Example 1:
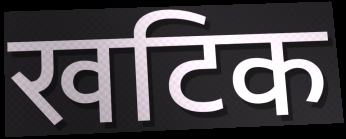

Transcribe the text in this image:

खटिक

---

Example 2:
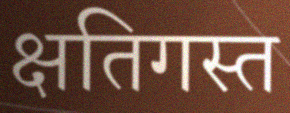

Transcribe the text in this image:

क्षतिगस्त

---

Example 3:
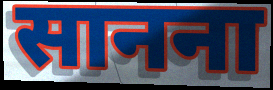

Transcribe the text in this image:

सानना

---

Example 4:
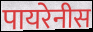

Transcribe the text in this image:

पायरेनीस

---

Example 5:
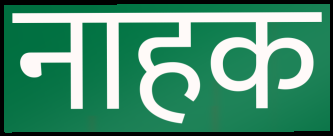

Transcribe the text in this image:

नाहक